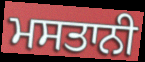
ਮਸਤਾਨੀ